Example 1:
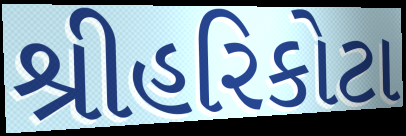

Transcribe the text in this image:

શ્રીહરિકોટા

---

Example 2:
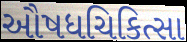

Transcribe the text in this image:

ઔષધચિકિત્સા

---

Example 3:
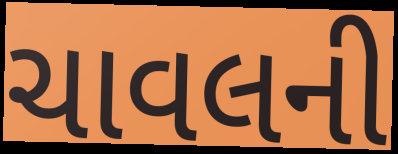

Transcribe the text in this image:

ચાવલની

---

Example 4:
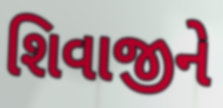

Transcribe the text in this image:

શિવાજીને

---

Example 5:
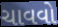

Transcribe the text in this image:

ચાવવો